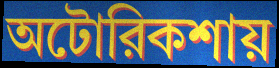
অটোরিকশায়